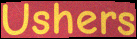
Ushers